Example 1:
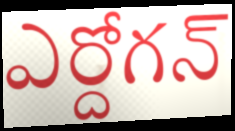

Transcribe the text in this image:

ఎర్దోగన్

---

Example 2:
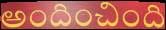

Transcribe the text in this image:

అందించింది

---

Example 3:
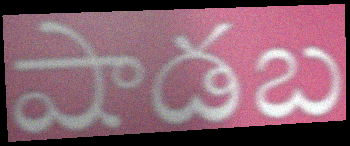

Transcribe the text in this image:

షాడబ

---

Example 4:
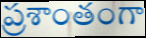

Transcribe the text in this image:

ప్రశాంతంగా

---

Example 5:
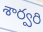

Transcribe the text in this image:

శార్వరి